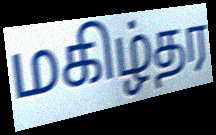
மகிழ்தர